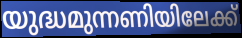
യുദ്ധമുന്നണിയിലേക്ക്